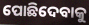
ପୋଛିଦେବାକୁ